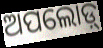
ଅପଲୋଡ଼୍